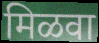
मिळवा